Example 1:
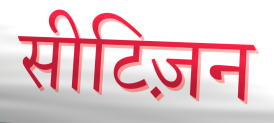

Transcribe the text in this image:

सीटिज़न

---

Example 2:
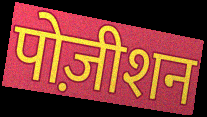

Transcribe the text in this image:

पोज़ीशन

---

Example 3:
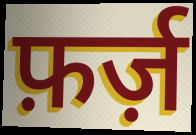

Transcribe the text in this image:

फ़र्ज़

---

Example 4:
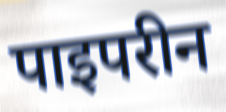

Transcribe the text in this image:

पाइपरीन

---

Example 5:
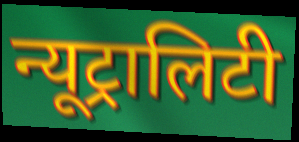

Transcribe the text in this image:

न्यूट्रालिटी